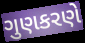
ગુણકરણે